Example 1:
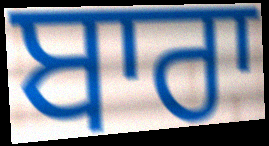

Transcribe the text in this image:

ਬਾਰਾ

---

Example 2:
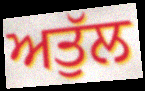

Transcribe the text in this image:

ਅਤੁੱਲ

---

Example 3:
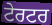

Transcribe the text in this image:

ਟੇਰਟਰ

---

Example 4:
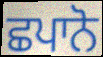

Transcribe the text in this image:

ਛਪਾਨੋ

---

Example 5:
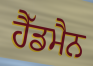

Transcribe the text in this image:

ਹੈੱਡਮੈਨ